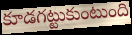
కూడగట్టుకుంటుంది